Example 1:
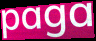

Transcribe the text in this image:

paga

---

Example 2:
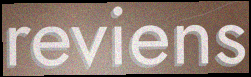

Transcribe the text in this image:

reviens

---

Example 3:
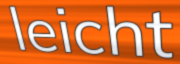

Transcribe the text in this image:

leicht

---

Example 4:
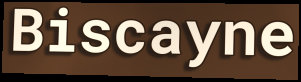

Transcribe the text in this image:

Biscayne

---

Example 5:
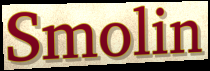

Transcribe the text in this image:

Smolin